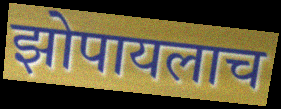
झोपायलाच